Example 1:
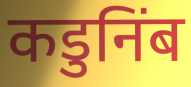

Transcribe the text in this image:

कडुनिंब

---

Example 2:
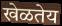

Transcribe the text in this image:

खेळतेय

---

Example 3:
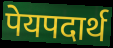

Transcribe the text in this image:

पेयपदार्थ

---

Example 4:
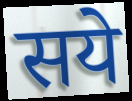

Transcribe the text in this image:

सये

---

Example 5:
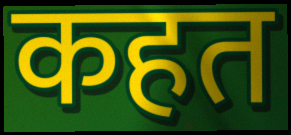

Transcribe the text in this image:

कहत